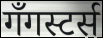
गँगस्टर्स